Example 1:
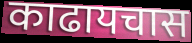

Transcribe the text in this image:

काढायचास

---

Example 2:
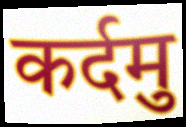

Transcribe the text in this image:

कर्दमु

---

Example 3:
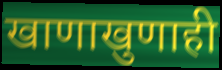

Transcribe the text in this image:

खाणाखुणाही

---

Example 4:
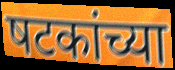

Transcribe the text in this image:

षटकांच्या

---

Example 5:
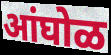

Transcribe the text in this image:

आंघोळ